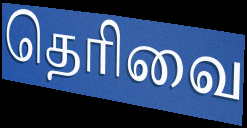
தெரிவை